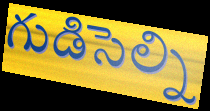
గుడిసెల్ని